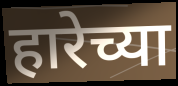
हारेच्या